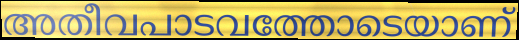
അതീവപാടവത്തോടെയാണ്